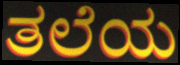
ತಲೆಯ